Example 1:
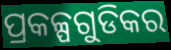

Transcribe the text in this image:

ପ୍ରକଳ୍ପଗୁଡିକର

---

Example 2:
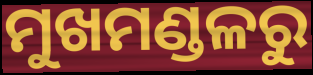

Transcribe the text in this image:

ମୁଖମଣ୍ଡଳରୁ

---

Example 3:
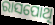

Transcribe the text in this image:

ରାସପୋଥି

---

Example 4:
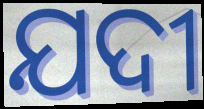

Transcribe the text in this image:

ଯଦୀ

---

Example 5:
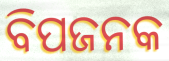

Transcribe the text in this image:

ବିପଜନକ